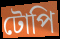
টোপি